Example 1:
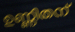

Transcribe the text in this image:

ഉണ്ണിതന്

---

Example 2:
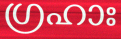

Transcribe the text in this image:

ഗ്രഹാഃ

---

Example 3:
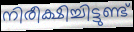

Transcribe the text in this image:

നിരീക്ഷിച്ചിട്ടുണ്ട്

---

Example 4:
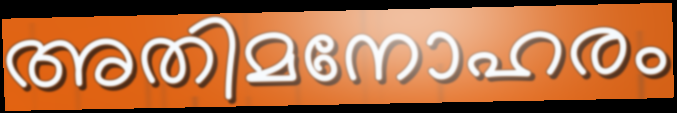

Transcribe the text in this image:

അതിമനോഹരം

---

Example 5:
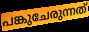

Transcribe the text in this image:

പങ്കുചേരുന്നത്